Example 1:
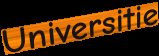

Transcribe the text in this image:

Universitie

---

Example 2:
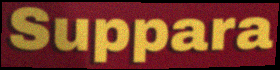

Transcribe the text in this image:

Suppara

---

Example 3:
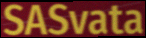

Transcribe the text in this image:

SASvata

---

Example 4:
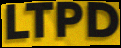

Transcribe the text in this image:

LTPD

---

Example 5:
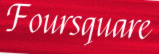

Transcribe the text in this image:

Foursquare